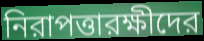
নিরাপত্তারক্ষীদের